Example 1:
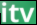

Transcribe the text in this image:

itv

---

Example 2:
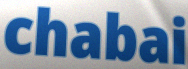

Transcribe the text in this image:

chabai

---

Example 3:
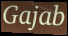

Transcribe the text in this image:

Gajab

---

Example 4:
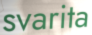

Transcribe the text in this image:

svarita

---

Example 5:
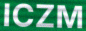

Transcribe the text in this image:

ICZM